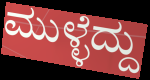
ಮುಳ್ಳೆದ್ದು